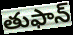
తుఫాన్